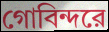
গোবিন্দরে